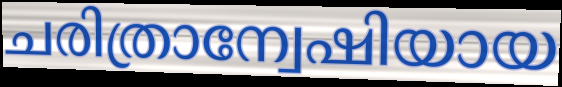
ചരിത്രാന്വേഷിയായ